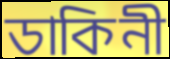
ডাকিনী